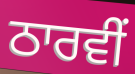
ਠਾਰਵੀਂ